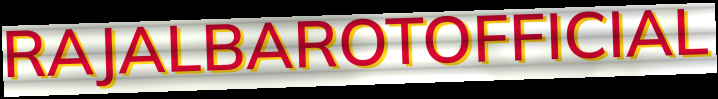
RAJALBAROTOFFICIAL